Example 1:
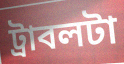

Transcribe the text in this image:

ট্রাবলটা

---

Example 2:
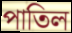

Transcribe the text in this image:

পাতিল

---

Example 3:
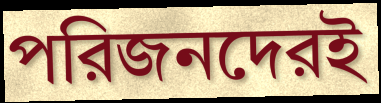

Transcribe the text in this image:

পরিজনদেরই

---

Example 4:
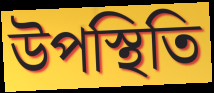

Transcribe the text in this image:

উপস্থিতি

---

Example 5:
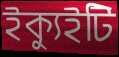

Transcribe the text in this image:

ইক্যুইটি